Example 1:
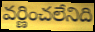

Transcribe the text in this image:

వర్ణించలేనిది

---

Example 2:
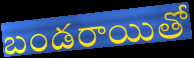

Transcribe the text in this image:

బండరాయితో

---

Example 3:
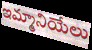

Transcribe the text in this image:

ఇమ్మానియేలు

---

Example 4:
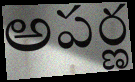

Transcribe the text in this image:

అపర్ణ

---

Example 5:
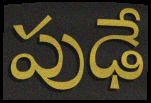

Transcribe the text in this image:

పుఢే